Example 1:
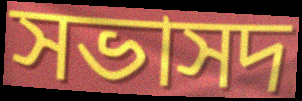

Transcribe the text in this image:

সভাসদ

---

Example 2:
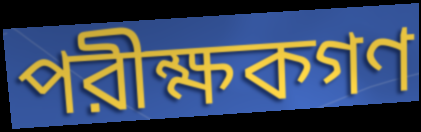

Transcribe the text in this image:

পরীক্ষকগণ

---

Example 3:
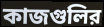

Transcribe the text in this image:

কাজগুলির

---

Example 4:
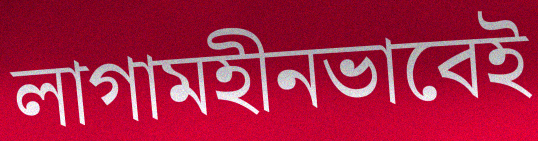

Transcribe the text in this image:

লাগামহীনভাবেই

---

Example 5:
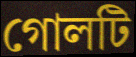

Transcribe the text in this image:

গোলটি